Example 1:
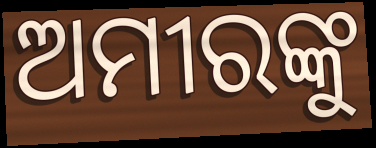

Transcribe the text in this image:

ଅମୀରଙ୍କୁ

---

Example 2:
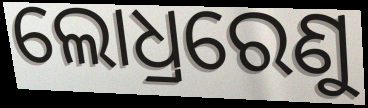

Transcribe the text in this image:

ଲୋଧ୍ରରେଣୁ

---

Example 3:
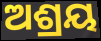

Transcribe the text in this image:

ଅଶ୍ରୟ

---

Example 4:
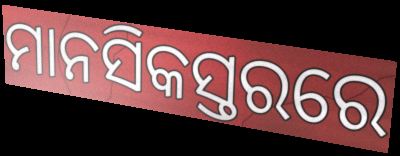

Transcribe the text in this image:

ମାନସିକସ୍ତରରେ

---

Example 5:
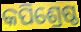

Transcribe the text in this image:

କପିଶ୍ରେଷ୍ଠ